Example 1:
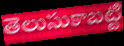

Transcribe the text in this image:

తెలుసుకాబట్టి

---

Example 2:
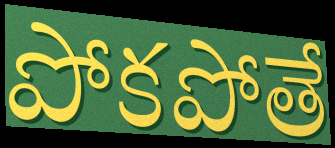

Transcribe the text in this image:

పోకపోతే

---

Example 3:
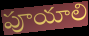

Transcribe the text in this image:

పూయాలి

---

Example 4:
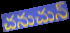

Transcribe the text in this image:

చనుచున్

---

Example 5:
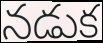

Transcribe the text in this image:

నడుక